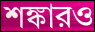
শঙ্কারও